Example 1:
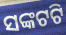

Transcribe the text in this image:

ସଙ୍କଟଟି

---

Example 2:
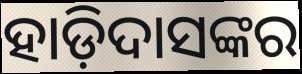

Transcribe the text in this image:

ହାଡ଼ିଦାସଙ୍କର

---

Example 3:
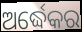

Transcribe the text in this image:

ଅର୍ଦ୍ଧେକର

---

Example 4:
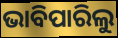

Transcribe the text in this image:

ଭାବିପାରିଲୁ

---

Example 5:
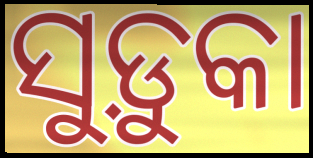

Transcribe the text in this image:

ସୁଡ଼ୁକା